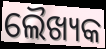
ଲୈଖ୍ୟକ